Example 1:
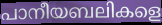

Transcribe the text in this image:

പാനീയബലികളെ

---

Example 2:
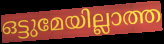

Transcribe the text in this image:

ഒട്ടുമേയില്ലാത്ത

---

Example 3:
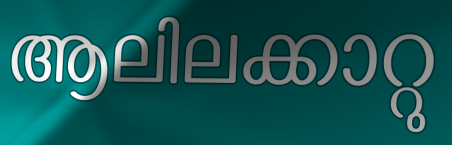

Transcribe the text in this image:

ആലിലക്കാറ്റു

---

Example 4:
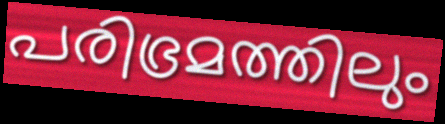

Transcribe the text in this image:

പരിഭ്രമത്തിലും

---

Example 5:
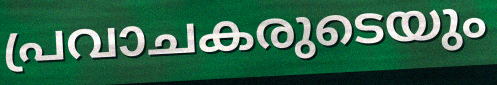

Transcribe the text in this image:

പ്രവാചകരുടെയും